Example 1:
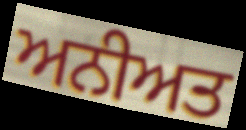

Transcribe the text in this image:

ਅਨੀਅਤ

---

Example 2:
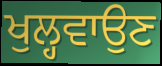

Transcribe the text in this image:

ਖੁਲ੍ਹਵਾਉਣ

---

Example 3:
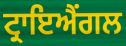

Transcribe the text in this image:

ਟ੍ਰਾਇਐਂਗਲ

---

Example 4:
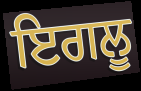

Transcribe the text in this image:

ਇਗਲੂ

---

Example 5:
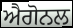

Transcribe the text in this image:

ਐਗੋਨਲ